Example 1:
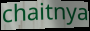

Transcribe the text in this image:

chaitnya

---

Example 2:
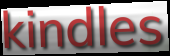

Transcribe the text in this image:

kindles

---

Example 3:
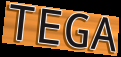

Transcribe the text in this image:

TEGA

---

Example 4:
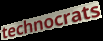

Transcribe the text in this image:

technocrats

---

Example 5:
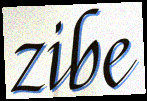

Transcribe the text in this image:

zibe